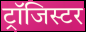
ट्रॉजिस्टर